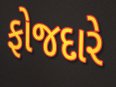
ફોજદારે